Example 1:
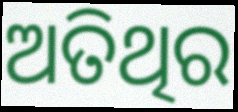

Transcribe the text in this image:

ଅତିଥିର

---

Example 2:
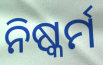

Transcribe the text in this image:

ନିଷ୍କର୍ମ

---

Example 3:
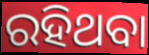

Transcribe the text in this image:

ରହିଥବା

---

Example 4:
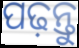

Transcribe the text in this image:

ପଢ଼ନ୍ତୁ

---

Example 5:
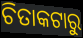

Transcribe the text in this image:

ଚିତାକଟାରୁ